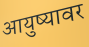
आयुष्यावर